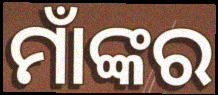
ମାଁଙ୍କର